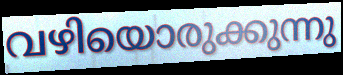
വഴിയൊരുക്കുന്നു